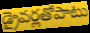
డ్రైవర్లతోపాటు